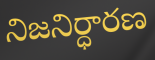
నిజనిర్ధారణ